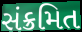
સંક્રમિત